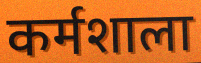
कर्मशाला